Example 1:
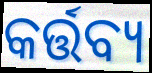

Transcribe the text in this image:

କର୍ତ୍ତବ୍ୟ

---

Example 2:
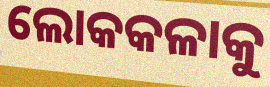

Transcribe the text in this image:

ଲୋକକଳାକୁ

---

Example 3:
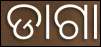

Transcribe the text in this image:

ଡାଗା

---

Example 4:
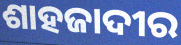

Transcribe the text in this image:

ଶାହଜାଦୀର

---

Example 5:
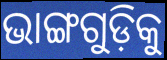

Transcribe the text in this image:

ଭାଙ୍ଗଗୁଡ଼ିକୁ